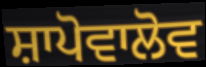
ਸ਼ਾਪੋਵਾਲੋਵ